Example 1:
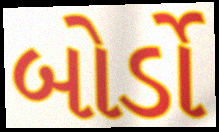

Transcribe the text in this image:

બોર્ડો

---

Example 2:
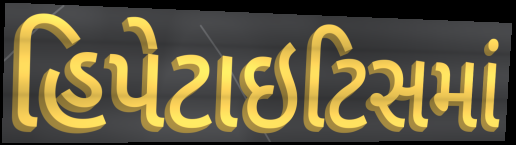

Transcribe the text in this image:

હિપેટાઇટિસમાં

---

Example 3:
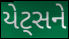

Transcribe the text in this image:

યેટ્સને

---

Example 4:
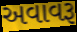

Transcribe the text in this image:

અવાવરૂ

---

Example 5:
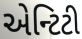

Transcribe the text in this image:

એન્ટિટી